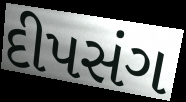
દીપસંગ